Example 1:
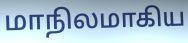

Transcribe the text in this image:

மாநிலமாகிய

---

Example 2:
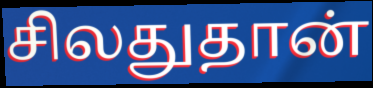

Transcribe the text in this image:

சிலதுதான்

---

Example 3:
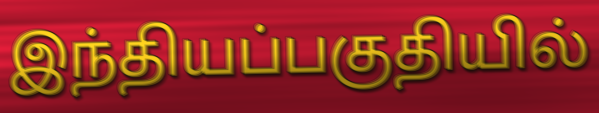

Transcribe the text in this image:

இந்தியப்பகுதியில்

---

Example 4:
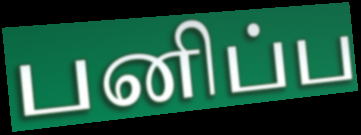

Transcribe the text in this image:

பனிப்ப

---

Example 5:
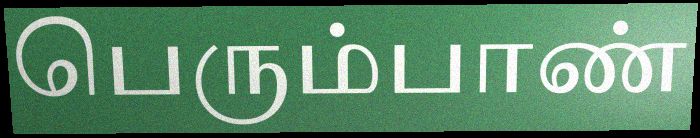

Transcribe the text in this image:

பெரும்பாண்